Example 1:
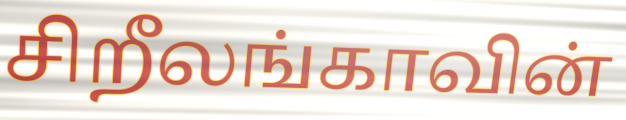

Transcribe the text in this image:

சிறீலங்காவின்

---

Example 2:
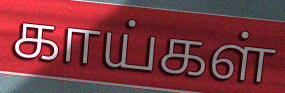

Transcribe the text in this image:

காய்கள்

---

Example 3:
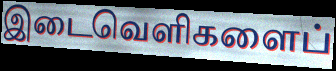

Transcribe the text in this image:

இடைவெளிகளைப்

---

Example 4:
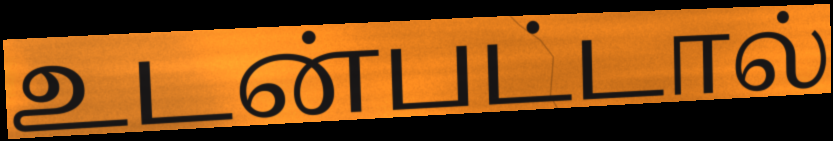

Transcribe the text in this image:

உடன்பட்டால்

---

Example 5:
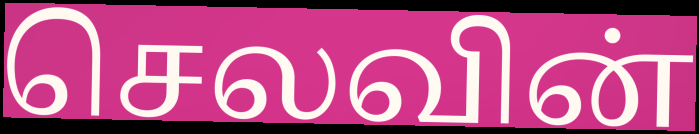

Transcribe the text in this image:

செலவின்